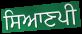
ਸਿਆਣਪੀ